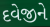
દવેજીને